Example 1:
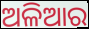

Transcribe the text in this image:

ଅଳିଆର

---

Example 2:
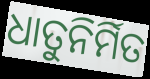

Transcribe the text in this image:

ଧାତୁନିର୍ମିତ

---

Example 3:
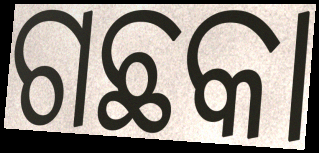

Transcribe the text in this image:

ଗଛକା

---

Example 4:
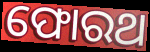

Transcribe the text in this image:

ଫୋରଥ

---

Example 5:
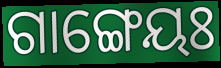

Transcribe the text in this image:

ଗାଙ୍ଗେୟଃ